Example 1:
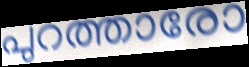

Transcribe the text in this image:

പുറത്താരോ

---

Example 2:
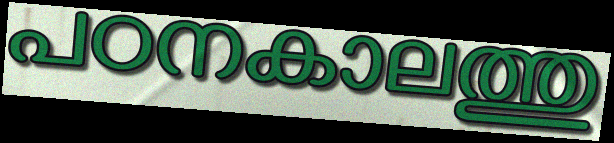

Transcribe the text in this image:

പഠനകാലത്തു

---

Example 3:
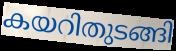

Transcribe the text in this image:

കയറിതുടങ്ങി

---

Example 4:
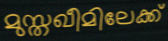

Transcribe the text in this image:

മുസ്തഖീമിലേക്ക്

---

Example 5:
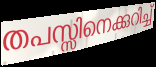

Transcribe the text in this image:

തപസ്സിനെക്കുറിച്ച്